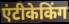
एंटीकेकिंग